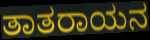
ತಾತರಾಯನ